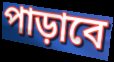
পাড়াবে